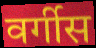
वर्गीस